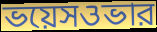
ভয়েসওভার